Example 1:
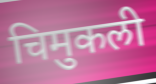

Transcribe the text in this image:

चिमुकली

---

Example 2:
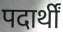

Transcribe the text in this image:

पदार्थीं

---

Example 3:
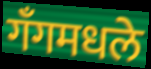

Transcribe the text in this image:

गँगमधले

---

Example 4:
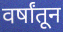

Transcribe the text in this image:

वर्षांतून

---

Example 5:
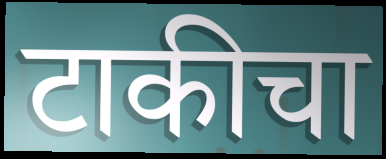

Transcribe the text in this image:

टाकीचा